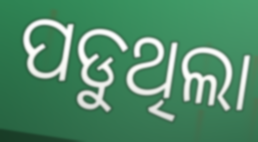
ପଡୁଥିଲା